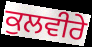
ਕੁਲਵੀਰੇ